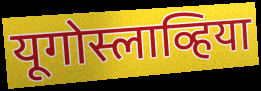
यूगोस्लाव्हिया